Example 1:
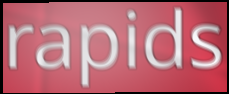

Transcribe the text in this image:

rapids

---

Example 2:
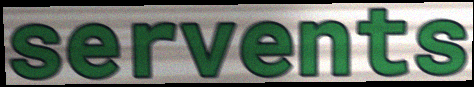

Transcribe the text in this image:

servents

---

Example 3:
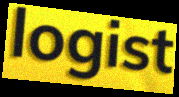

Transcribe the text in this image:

logist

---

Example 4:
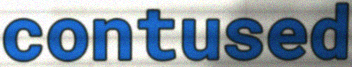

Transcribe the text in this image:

contused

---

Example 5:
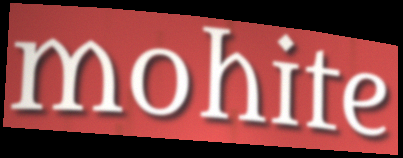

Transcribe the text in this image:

mohite